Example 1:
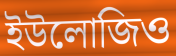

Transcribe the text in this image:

ইউলোজিও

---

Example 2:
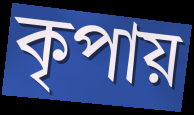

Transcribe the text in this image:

কৃপায়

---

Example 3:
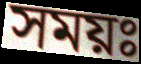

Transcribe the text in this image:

সময়ঃ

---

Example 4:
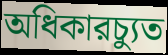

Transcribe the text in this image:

অধিকারচ্যুত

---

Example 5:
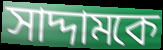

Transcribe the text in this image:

সাদ্দামকে